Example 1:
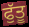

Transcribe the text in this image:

ਫੁੱਤੂ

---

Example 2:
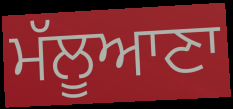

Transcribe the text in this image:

ਮੱਲੂਆਣਾ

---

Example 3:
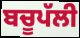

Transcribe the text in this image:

ਬਚੂਪੱਲੀ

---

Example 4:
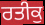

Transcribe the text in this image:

ਰਤੀਕੁ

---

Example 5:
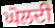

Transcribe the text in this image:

ਘੋਲਦੀ